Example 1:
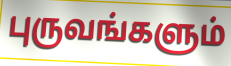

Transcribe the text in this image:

புருவங்களும்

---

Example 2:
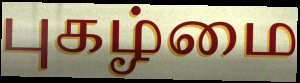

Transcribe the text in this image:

புகழ்மை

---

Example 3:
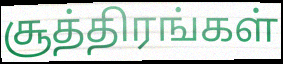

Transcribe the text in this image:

சூத்திரங்கள்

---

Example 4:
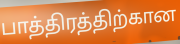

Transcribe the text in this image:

பாத்திரத்திற்கான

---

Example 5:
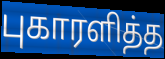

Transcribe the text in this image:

புகாரளித்த